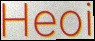
Heoi